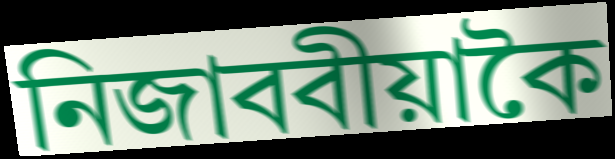
নিজাববীয়াকৈ